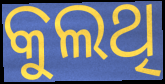
କୁଲଥି